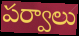
పర్వాలు